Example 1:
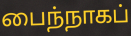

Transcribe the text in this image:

பைந்நாகப்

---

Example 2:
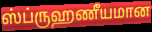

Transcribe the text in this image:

ஸ்ப்ருஹணீயமான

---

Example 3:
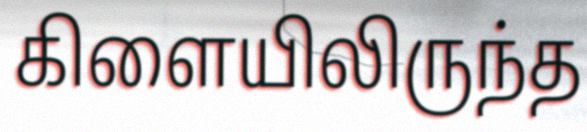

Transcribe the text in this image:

கிளையிலிருந்த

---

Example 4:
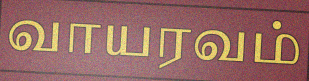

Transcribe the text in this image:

வாயரவம்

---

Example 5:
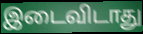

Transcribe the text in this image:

இடைவிடாது